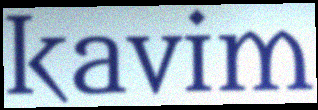
kavim